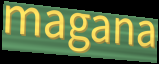
magana